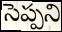
సెప్పని